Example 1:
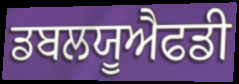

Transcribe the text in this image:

ਡਬਲਯੂਐਫਡੀ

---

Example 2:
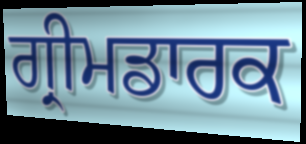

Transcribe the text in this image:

ਗ੍ਰੀਮਡਾਰਕ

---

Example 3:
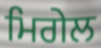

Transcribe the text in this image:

ਮਿਗੇਲ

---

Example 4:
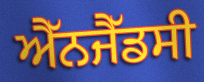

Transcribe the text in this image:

ਐੱਨਜੈੱਡਸੀ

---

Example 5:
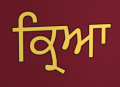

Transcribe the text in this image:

ਕ੍ਰਿਆ